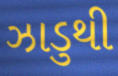
ઝાડુથી